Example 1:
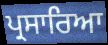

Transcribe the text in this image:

ਪ੍ਰਸਾਰਿਆ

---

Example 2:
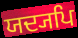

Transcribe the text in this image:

ਯਦ੍ਯਪਿ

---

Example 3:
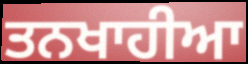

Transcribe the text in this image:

ਤਨਖਾਹੀਆ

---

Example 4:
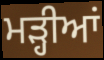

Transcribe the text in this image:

ਮੜ੍ਹੀਆਂ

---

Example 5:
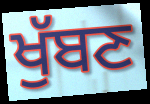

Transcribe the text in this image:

ਖੁੱਬਣ